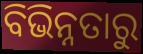
ବିଭିନ୍ନତାରୁ